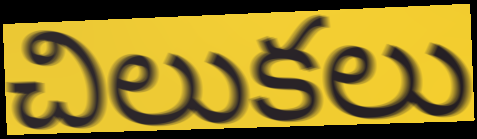
చిలుకలు